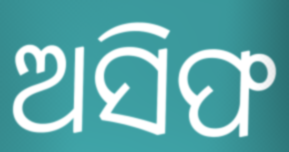
ଅସିଫ